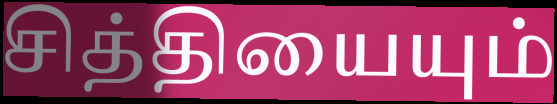
சித்தியையும்